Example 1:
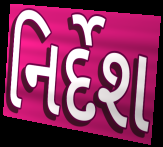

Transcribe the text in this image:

નિર્દેશ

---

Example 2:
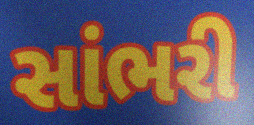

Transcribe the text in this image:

સાંભરી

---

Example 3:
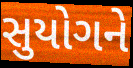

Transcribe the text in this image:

સુયોગને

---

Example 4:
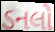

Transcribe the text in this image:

ડનલો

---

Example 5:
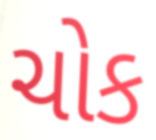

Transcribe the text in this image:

ચોક